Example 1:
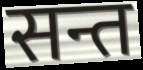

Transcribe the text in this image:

सन्‍त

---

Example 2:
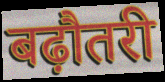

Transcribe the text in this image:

बढ़ौतरी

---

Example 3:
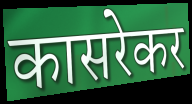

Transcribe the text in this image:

कासरेकर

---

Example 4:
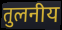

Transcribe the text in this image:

तुलनीय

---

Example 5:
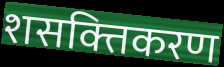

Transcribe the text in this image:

शसक्तिकरण